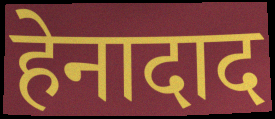
हेनादाद